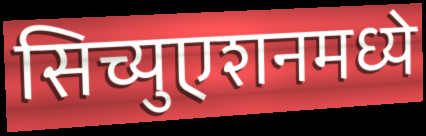
सिच्युएशनमध्ये